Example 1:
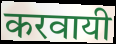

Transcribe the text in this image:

करवायी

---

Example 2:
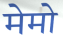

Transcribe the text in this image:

मेमो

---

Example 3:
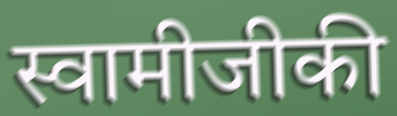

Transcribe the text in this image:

स्वामीजीकी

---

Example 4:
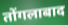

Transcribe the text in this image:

तोंगलाबाद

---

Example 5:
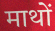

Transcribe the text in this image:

माथों